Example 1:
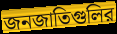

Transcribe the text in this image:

জনজাতিগুলির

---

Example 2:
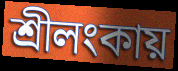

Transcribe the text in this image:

শ্রীলংকায়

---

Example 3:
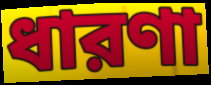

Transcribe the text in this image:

ধারণা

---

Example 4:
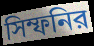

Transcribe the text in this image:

সিম্ফনির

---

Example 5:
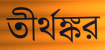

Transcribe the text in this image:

তীর্থঙ্কর